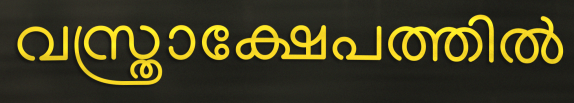
വസ്ത്രാക്ഷേപത്തിൽ